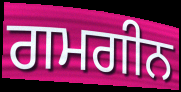
ਗਮਗੀਨ